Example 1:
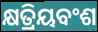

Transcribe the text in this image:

କ୍ଷତ୍ରିୟବଂଶ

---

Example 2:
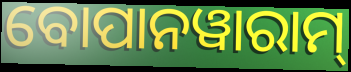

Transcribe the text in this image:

ବୋପାନୱାରାମ୍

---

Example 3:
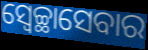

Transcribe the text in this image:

ସ୍ୱେଚ୍ଛାସେବାର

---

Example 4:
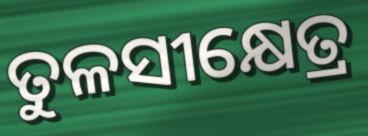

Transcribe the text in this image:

ତୁଳସୀକ୍ଷେତ୍ର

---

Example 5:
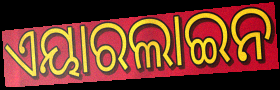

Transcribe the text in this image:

ଏୟାରଲାଇନ